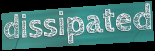
dissipated